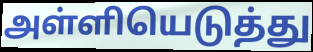
அள்ளியெடுத்து